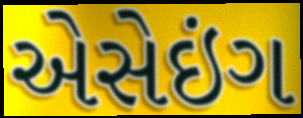
એસેઇંગ